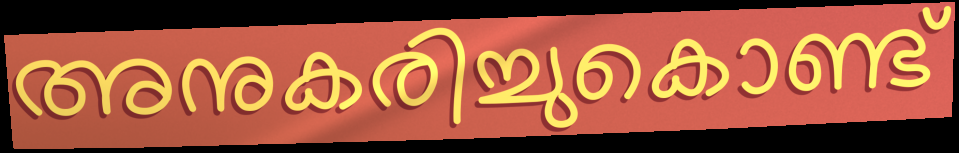
അനുകരിച്ചുകൊണ്ട്